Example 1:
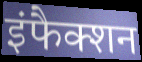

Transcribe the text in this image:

इंफैक्शन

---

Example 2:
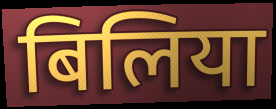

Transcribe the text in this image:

बिलिया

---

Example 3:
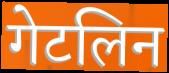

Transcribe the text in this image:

गेटलिन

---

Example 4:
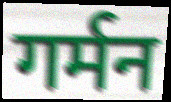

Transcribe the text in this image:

गर्मन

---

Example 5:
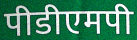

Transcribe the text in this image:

पीडीएमपी